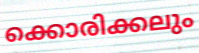
ക്കൊരിക്കലും